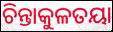
ଚିନ୍ତାକୁଳତୟା